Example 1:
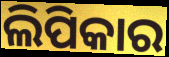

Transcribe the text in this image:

ଲିପିକାର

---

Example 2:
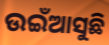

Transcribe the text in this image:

ଉଇଁଆସୁଛି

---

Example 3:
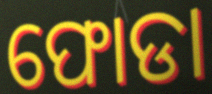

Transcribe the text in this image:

ଫୋଡା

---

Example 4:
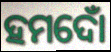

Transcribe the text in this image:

ହମଦୋଁ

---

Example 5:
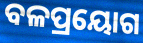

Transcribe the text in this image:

ବଳପ୍ରୟୋଗ